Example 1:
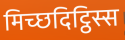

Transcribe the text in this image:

मिच्छदिट्ठिस्स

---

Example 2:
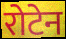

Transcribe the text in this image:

रोटेन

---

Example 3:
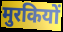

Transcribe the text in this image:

मुरकियों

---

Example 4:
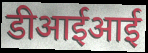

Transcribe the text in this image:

डीआईआई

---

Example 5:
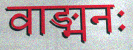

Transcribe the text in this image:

वाङ्मनः